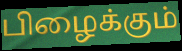
பிழைக்கும்